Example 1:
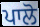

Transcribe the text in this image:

ਪਾਲੋ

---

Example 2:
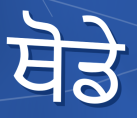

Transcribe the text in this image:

ਥੋਡੇ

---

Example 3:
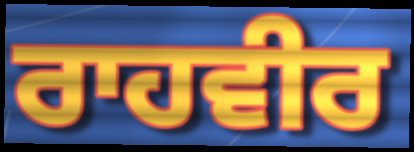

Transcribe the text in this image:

ਰਾਹਵੀਰ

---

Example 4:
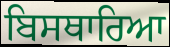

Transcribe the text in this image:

ਬਿਸਥਾਰਿਆ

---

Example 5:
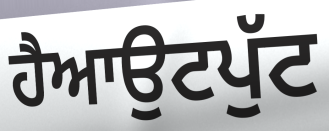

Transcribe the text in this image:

ਹੈਆਉਟਪੁੱਟ